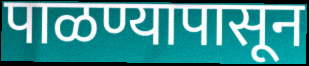
पाळण्यापासून